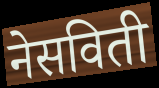
नेसविती